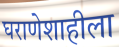
घराणेशाहीला